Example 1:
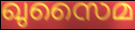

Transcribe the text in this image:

ഖുസൈമ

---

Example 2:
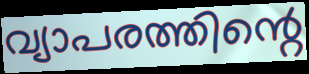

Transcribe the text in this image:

വ്യാപരത്തിന്റെ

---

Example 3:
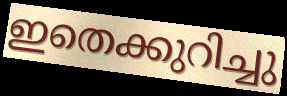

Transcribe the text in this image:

ഇതെക്കുറിച്ചു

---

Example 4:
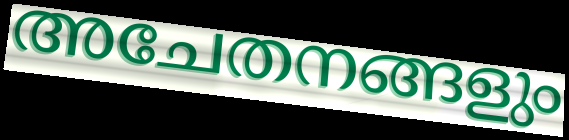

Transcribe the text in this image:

അചേതനങ്ങളും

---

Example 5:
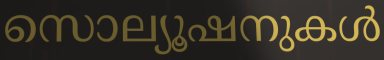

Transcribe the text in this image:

സൊല്യൂഷനുകൾ